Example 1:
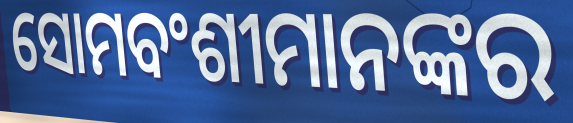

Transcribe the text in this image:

ସୋମବଂଶୀମାନଙ୍କର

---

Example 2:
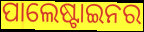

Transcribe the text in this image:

ପାଲେଷ୍ଟାଇନର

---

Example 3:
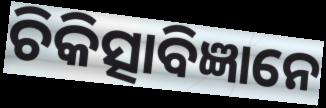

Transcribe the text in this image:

ଚିକିତ୍ସାବିଜ୍ଞାନେ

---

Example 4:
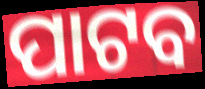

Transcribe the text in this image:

ପାଟବ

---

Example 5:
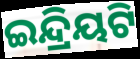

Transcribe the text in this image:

ଇନ୍ଦ୍ରିୟଟି